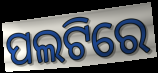
ପଲଟିରେ